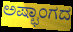
ಅಷ್ಟಾಂಗದ